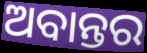
ଅବାନ୍ତର